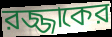
রজ্জাকের